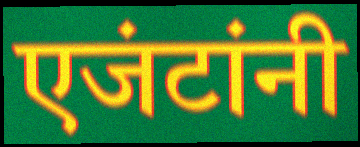
एजंटांनी